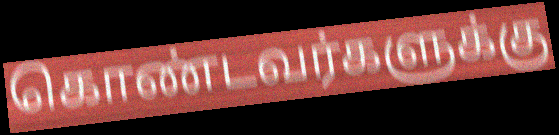
கொண்டவர்களுக்கு